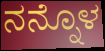
ನನ್ನೊಳ